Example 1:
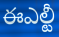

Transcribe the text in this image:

ఈఎల్టీ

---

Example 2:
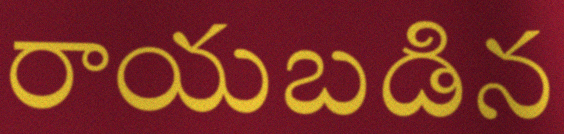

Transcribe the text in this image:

రాయబడిన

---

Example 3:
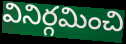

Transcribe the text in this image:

వినిర్గమించి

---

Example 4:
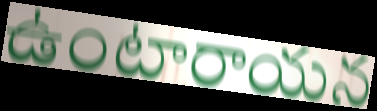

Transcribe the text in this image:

ఉంటారాయన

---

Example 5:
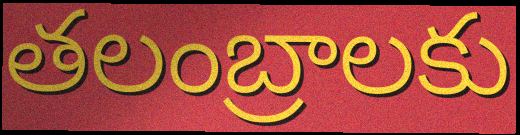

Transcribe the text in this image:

తలంబ్రాలకు